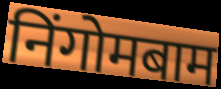
निंगोमबाम